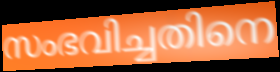
സംഭവിച്ചതിനെ